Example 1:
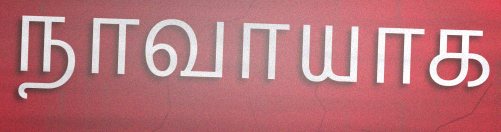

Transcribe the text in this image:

நாவாயாக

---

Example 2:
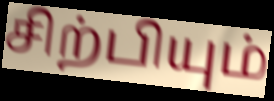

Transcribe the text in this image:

சிற்பியும்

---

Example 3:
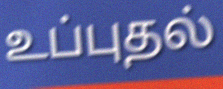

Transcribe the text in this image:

உப்புதல்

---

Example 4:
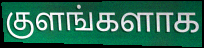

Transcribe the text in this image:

குளங்களாக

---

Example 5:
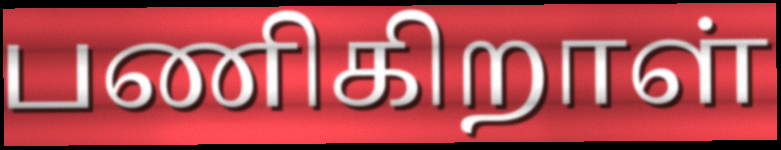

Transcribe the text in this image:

பணிகிறாள்